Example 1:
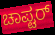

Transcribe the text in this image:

ಚಾಪ್ಟರ್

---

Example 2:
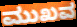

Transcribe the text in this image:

ಮುಖವ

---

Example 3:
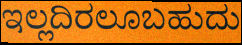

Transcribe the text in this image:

ಇಲ್ಲದಿರಲೂಬಹುದು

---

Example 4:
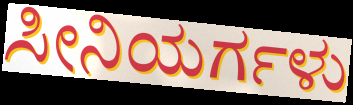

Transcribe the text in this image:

ಸೀನಿಯರ್ಗಳು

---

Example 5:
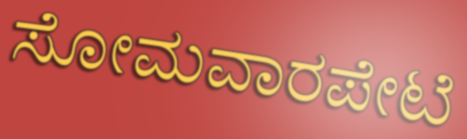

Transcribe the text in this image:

ಸೋಮವಾರಪೇಟೆ